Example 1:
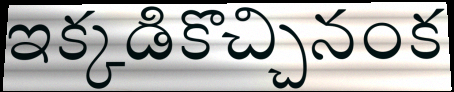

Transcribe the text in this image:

ఇక్కడికొచ్చినంక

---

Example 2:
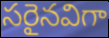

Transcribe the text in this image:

సరైనవిగా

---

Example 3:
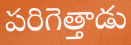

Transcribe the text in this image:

పరిగెత్తాడు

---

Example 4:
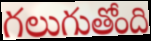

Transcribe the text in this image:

గలుగుతోంది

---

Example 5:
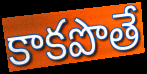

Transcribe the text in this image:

కాకపొతే